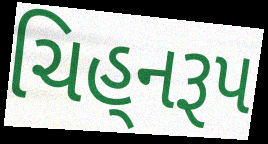
ચિહ્‌નરૂપ